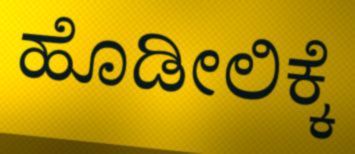
ಹೊಡೀಲಿಕ್ಕೆ